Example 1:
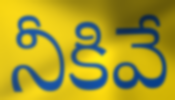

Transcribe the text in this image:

నీకివే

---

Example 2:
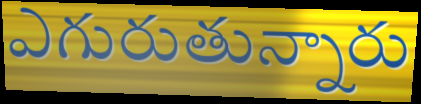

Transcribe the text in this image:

ఎగురుతున్నారు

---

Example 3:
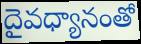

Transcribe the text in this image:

దైవధ్యానంతో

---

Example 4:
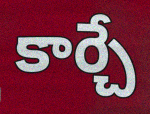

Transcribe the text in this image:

కార్చే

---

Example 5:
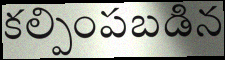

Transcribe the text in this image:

కల్పింపబడిన